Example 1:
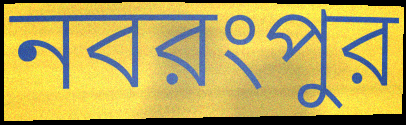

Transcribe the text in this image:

নবরংপুর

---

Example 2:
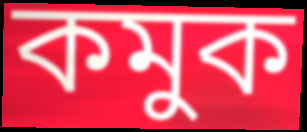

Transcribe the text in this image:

কমুক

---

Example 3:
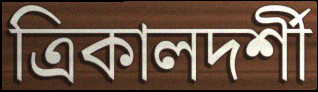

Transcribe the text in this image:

ত্রিকালদর্শী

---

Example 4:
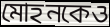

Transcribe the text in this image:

মোহনকেও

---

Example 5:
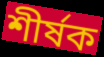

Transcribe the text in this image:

শীর্ষক